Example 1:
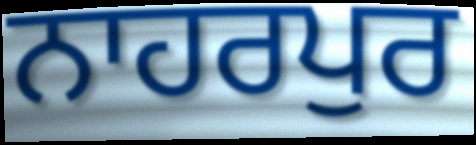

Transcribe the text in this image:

ਨਾਹਰਪੁਰ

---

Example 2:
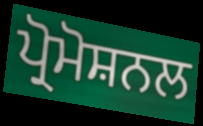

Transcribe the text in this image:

ਪ੍ਰੋਮੋਸ਼ਨਲ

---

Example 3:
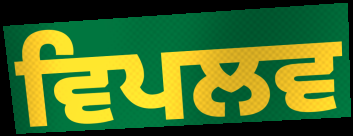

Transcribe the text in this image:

ਵਿਪਲਵ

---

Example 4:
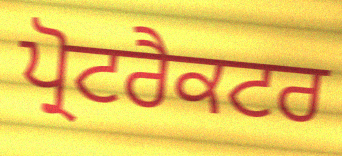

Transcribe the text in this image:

ਪ੍ਰੋਟਰੈਕਟਰ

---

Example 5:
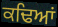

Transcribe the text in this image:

ਕਢਿਆਂ